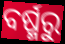
ବର୍ଷ୍ମରୁ